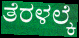
ತೆರಳಲ್ಕೆ